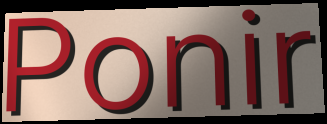
Ponir